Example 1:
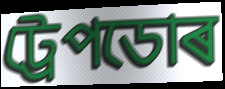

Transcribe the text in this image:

ট্ৰেপডোৰ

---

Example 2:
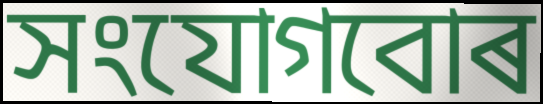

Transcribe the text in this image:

সংযোগবোৰ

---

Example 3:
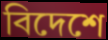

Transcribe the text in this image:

বিদেশে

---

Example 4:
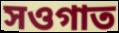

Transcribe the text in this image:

সওগাত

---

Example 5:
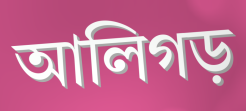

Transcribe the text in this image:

আলিগড়